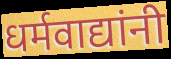
धर्मवाद्यांनी